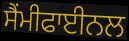
ਸੈਂਮੀਫਾਈਨਲ